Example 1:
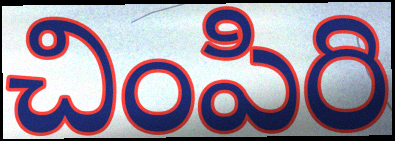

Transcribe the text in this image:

చింపిరి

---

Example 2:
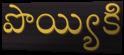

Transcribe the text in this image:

పొయ్యికి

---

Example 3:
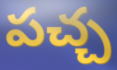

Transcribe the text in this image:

పచ్చ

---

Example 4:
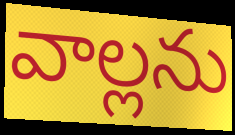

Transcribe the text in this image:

వాల్లను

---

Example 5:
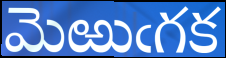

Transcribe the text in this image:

మెఱుఁగక